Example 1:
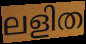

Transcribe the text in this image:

ലളിത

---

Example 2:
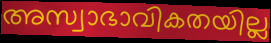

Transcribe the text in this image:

അസ്വാഭാവികതയില്ല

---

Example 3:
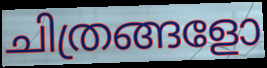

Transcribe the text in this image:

ചിത്രങ്ങളോ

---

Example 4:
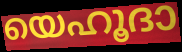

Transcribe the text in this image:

യെഹൂദാ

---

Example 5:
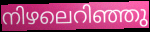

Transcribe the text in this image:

നിഴലെറിഞ്ഞു